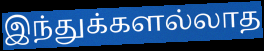
இந்துக்களல்லாத